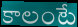
కాలంటే